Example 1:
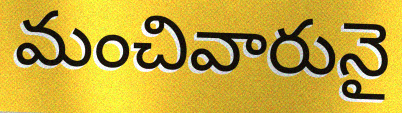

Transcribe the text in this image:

మంచివారునై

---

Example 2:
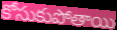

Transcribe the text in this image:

కోసుకుపోతాయి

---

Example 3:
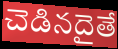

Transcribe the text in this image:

చెడినదైతే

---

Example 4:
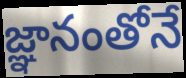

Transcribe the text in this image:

జ్ఞానంతోనే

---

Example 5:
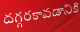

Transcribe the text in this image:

దగ్గరకావడానికి